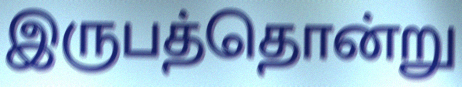
இருபத்தொன்று